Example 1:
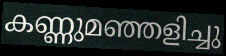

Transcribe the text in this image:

കണ്ണുമഞ്ഞളിച്ചു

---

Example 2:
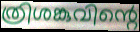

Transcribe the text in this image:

ത്രിശങ്കുവിന്റെ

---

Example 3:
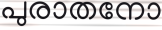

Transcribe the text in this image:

പുരാതനോ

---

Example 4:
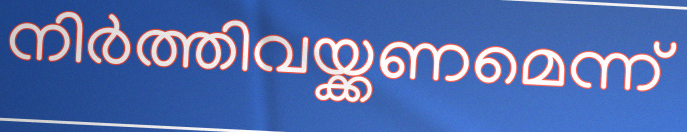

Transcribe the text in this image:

നിർത്തിവയ്ക്കണമെന്ന്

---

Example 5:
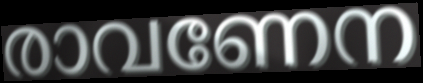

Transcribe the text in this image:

രാവണേന